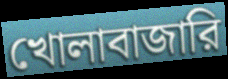
খোলাবাজারি